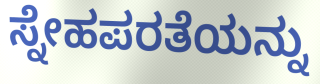
ಸ್ನೇಹಪರತೆಯನ್ನು